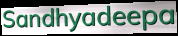
Sandhyadeepa